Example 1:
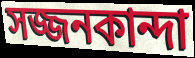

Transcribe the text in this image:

সজ্জনকান্দা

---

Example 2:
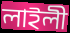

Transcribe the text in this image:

লাইলী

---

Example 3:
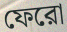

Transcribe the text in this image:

ফেরো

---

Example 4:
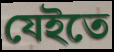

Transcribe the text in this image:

যেইতে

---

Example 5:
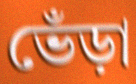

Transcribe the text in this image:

ভেঁড়া